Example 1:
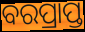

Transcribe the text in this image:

ବରପ୍ରାପ୍ତ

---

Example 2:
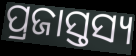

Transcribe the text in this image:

ପ୍ରଜାସ୍ତସ୍ୟ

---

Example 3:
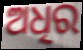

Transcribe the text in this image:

ଅଧିର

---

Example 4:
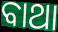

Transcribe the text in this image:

ବାଥା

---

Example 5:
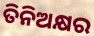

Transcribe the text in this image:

ତିନିଅକ୍ଷର